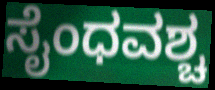
ಸೈಂಧವಶ್ಚ